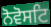
ਨੋਵੋਸਟਿ